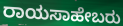
ರಾಯಸಾಹೇಬರು